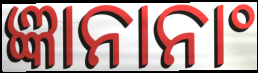
ଜ୍ଞାନାନାଂ